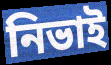
নিভাই